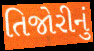
તિજોરીનું